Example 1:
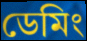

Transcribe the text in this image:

ডেমিং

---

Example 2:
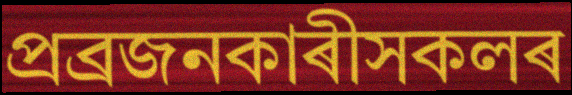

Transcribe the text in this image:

প্ৰব্ৰজনকাৰীসকলৰ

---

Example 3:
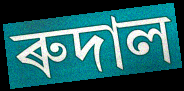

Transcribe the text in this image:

ৰুদাল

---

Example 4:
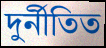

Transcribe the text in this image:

দুৰ্নীতিত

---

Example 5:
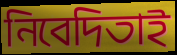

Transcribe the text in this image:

নিবেদিতাই